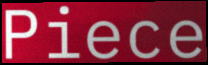
Piece